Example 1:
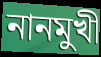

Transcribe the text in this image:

নানমুখী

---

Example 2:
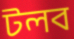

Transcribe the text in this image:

টলব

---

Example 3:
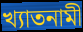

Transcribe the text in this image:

খ্যাতনামী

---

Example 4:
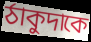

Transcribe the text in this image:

ঠাকুদাকে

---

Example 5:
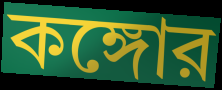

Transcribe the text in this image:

কঙ্গোর